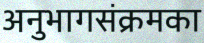
अनुभागसंक्रमका